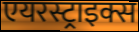
एयरस्ट्राइक्स